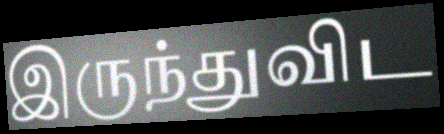
இருந்துவிட